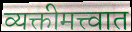
व्यक्तीमत्त्वात